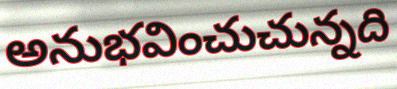
అనుభవించుచున్నది